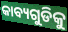
କାବ୍ୟଗୁଡିକୁ